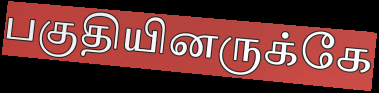
பகுதியினருக்கே